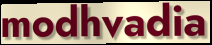
modhvadia